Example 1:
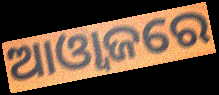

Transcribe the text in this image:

ଆଓ୍ୱାଜରେ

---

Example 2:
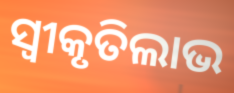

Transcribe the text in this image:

ସ୍ଵୀକୃତିଲାଭ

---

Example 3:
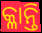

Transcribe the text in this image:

କ୍ଳାନ୍ତି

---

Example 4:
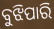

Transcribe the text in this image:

ବୁଝିପାରି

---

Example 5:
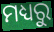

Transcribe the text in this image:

ମଧ୍ୟରୁ